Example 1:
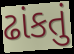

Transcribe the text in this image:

ઢાંકતું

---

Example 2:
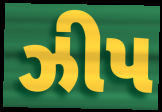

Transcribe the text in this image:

ઝીપ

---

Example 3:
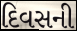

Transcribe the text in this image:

દિવસની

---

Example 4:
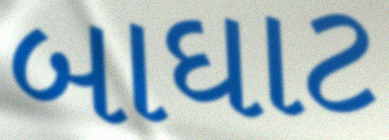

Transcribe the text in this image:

બાઘાટ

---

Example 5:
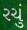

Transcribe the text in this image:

રચું